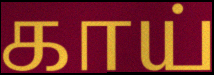
காய்